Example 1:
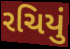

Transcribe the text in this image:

રચિયું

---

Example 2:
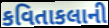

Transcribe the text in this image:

કવિતાકલાની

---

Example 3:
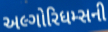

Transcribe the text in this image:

અલ્ગોરિધમ્સની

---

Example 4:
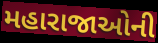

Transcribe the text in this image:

મહારાજાઓની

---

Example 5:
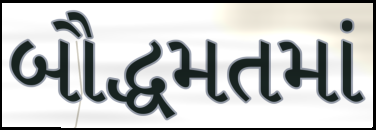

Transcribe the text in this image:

બૌદ્ધમતમાં